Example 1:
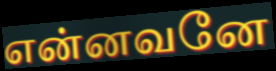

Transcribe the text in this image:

என்னவனே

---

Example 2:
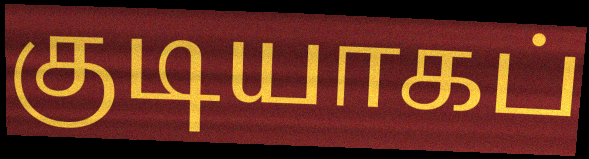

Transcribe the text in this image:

குடியாகப்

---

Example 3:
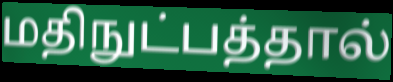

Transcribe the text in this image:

மதிநுட்பத்தால்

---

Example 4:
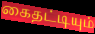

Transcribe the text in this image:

கைதட்டியும்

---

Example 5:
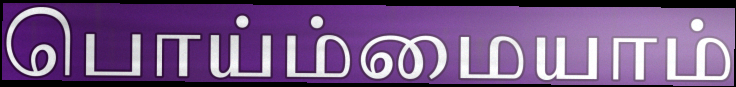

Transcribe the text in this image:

பொய்ம்மையாம்